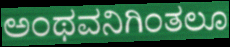
ಅಂಥವನಿಗಿಂತಲೂ